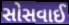
સોસવાઈ